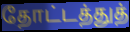
தோட்டத்துத்